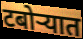
टबोऱ्यात